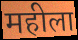
महीला